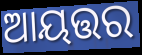
ଆୟତ୍ତର